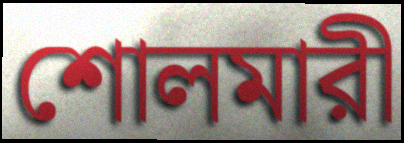
শোলমারী